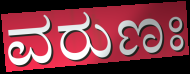
ವರುಣಃ